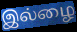
இல்ழை